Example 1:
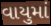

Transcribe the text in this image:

વાયુમાં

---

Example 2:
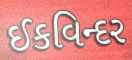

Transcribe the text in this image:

ઈકવિન્દર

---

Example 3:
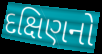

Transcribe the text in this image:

દક્ષિણનો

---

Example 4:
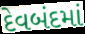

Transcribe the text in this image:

દેવબંદમાં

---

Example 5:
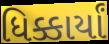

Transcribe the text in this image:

ધિક્કાર્યાં